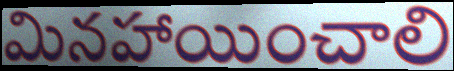
మినహాయించాలి